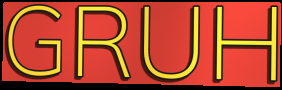
GRUH